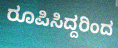
ರೂಪಿಸಿದ್ದರಿಂದ